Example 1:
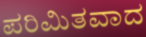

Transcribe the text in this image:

ಪರಿಮಿತವಾದ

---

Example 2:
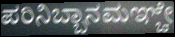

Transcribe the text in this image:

ಪರಿನಿಬ್ಬಾನಮಞ್ಚೇ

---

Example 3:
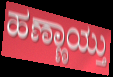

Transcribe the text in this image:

ಹಣ್ಣಾಯ್ತು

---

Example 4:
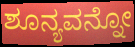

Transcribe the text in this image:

ಶೂನ್ಯವನ್ನೋ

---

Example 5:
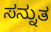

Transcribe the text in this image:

ಸನ್ನುತ